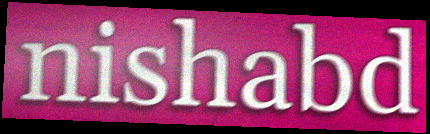
nishabd